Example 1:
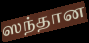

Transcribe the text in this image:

ஸந்தான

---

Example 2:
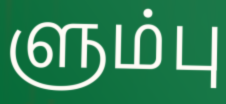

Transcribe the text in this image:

ளும்பு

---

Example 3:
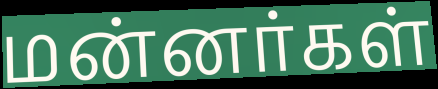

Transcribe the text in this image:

மன்னர்கள்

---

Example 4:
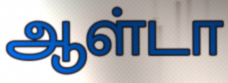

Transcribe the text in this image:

ஆள்டா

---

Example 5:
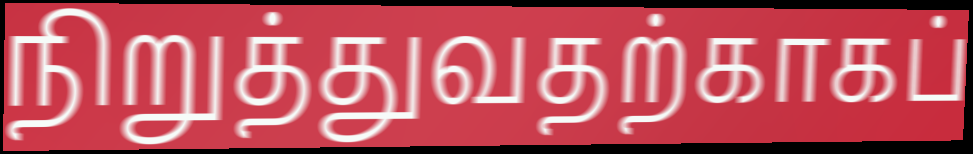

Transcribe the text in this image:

நிறுத்துவதற்காகப்